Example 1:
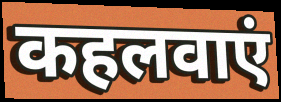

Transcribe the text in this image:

कहलवाएं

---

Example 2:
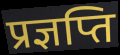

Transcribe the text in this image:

प्रज्ञप्ति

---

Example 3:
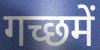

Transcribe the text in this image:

गच्छमें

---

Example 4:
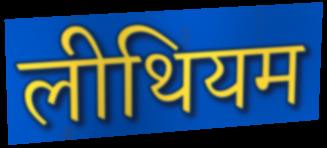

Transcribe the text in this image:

लीथियम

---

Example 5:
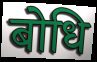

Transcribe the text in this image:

बोधि